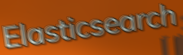
Elasticsearch